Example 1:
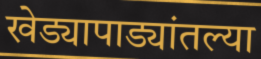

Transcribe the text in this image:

खेड्यापाड्यांतल्या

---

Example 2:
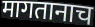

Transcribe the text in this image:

मागतानाच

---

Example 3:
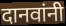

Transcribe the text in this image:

दानवांनी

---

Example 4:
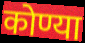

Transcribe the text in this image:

कोण्या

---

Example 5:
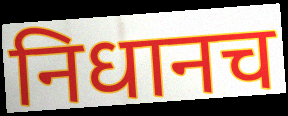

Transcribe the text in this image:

निधानच